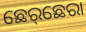
ଛେର୍‌ଛେରା